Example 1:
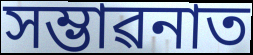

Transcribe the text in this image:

সম্ভাৱনাত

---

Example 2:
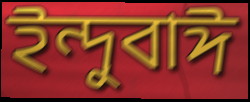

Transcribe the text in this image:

ইন্দুবাঈ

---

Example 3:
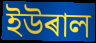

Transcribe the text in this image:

ইউৰাল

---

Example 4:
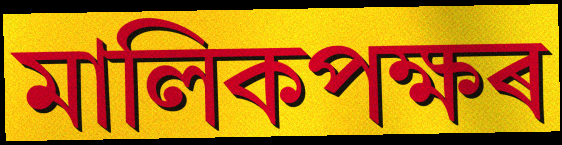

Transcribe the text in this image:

মালিকপক্ষৰ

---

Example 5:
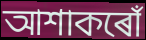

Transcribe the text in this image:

আশাকৰোঁ